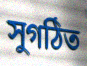
সুগঠিত